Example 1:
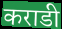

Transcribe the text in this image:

कराडी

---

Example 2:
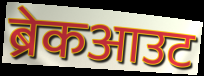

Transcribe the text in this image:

ब्रेकआउट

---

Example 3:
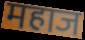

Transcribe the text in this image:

महाज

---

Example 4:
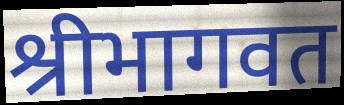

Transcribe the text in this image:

श्रीभागवत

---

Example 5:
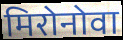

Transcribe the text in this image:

मिरोनोवा